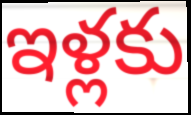
ఇళ్లకు